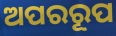
ଅପରରୂପ